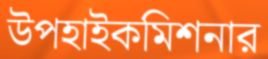
উপহাইকমিশনার